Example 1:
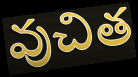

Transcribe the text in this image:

వుచిత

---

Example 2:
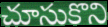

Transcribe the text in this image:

చూసుకొని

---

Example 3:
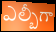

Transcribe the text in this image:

ఎల్బీగా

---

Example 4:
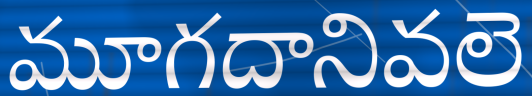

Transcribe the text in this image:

మూగదానివలె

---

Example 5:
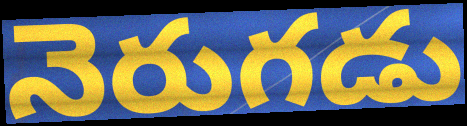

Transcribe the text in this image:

నెరుగడు